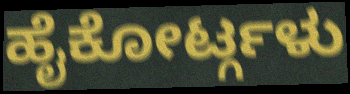
ಹೈಕೋರ್ಟ್ಗಳು